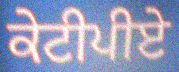
ਕੇਟੀਪੀਏ